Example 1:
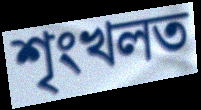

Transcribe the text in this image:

শৃংখলত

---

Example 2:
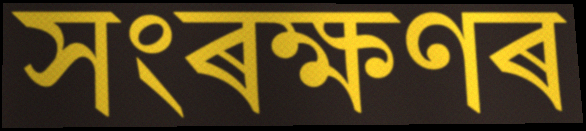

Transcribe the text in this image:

সংৰক্ষণৰ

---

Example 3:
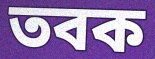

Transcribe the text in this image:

তবক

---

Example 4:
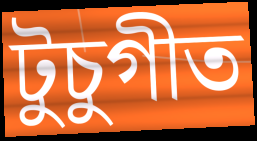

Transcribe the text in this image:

টুচুগীত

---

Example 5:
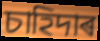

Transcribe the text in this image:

চাহিদাৰ